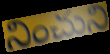
నించుని